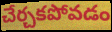
చేర్చకపోవడం